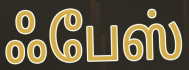
ஃபேஸ்